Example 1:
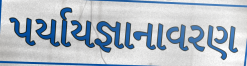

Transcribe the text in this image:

પર્યાયજ્ઞાનાવરણ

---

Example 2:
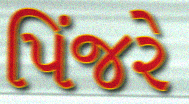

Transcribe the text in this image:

પિંજરે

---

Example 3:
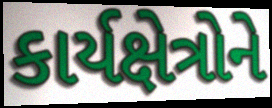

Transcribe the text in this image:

કાર્યક્ષેત્રોને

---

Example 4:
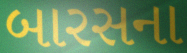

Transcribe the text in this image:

બારસના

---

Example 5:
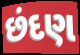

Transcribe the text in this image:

છંદણ